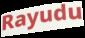
Rayudu